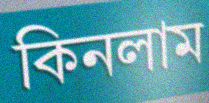
কিনলাম